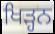
ਖਿੜ੍ਹਨ